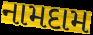
નામદામ